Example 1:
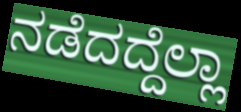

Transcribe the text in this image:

ನಡೆದದ್ದೆಲ್ಲಾ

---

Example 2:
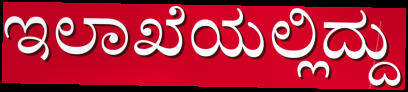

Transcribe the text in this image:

ಇಲಾಖೆಯಲ್ಲಿದ್ದು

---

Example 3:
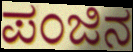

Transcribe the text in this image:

ಪಂಜಿನ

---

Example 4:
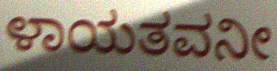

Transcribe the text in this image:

ಳಾಯತವನೀ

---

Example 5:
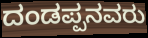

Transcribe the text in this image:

ದಂಡಪ್ಪನವರು